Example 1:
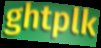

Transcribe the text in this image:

ghtplk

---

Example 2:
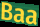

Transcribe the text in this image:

Baa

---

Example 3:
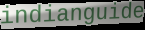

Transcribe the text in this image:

indianguide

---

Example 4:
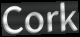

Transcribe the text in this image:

Cork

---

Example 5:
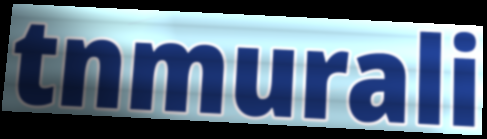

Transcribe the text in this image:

tnmurali